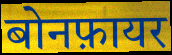
बोनफ़ायर